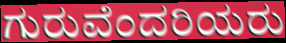
ಗುರುವೆಂದರಿಯರು